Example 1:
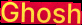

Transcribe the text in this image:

Ghosh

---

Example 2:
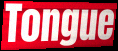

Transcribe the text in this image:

Tongue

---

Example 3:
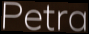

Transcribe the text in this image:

Petra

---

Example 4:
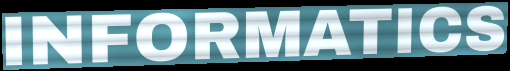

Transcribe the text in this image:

INFORMATICS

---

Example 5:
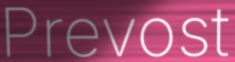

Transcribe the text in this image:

Prevost